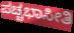
ಪಚ್ಚಭಾಸೀತಿ